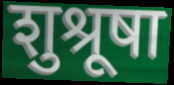
शुश्रूषा